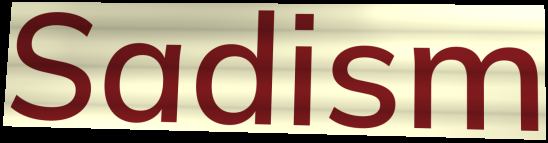
Sadism